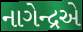
નાગેન્દ્રએ